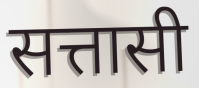
सत्तासी